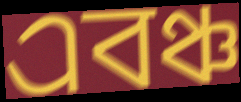
এবঞ্চ